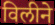
विलीने